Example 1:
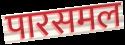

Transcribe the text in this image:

पारसमल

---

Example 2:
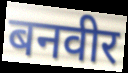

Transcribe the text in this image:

बनवीर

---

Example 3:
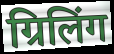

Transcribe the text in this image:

ग्रिलिंग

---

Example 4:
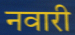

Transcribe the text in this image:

नवारी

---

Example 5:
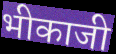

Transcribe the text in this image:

भीकाजी